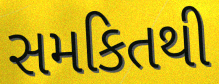
સમકિતથી